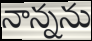
నాన్నను